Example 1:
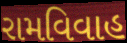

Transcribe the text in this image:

રામવિવાહ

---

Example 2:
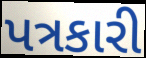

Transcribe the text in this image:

પત્રકારી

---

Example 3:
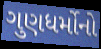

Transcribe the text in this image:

ગુણધર્મોનો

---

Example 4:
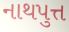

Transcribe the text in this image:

નાથપુત્ત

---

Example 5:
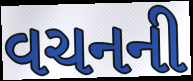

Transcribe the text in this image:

વચનની